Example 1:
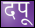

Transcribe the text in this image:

दपू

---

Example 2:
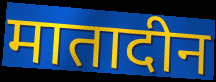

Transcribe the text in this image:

मातादीन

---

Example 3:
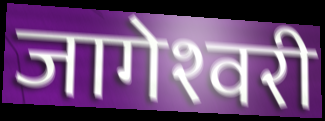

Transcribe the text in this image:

जागेश्वरी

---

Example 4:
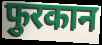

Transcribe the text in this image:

फुरकान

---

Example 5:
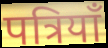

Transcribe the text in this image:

पत्रियाँ